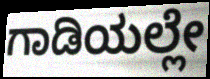
ಗಾಡಿಯಲ್ಲೇ